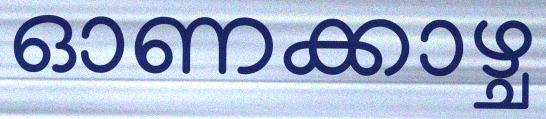
ഓണക്കാഴ്ച